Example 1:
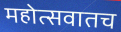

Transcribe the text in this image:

महोत्सवातच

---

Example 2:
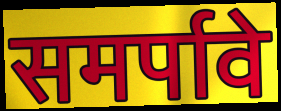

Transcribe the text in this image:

समर्पावे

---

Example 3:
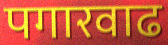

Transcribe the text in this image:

पगारवाढ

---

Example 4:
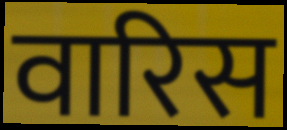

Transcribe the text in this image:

वारिस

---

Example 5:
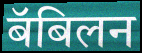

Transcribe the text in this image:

बॅबिलन